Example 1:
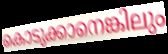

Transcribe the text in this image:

കൊടുക്കാനെങ്കിലും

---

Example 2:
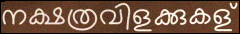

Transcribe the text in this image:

നക്ഷത്രവിളക്കുകള്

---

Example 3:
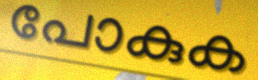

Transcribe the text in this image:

പോകുക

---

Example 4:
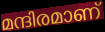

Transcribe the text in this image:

മന്ദിരമാണ്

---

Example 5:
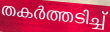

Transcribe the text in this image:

തകർത്തടിച്ച്